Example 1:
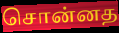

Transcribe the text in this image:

சொன்னத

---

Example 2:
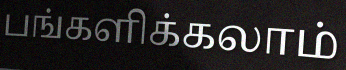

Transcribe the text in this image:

பங்களிக்கலாம்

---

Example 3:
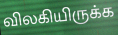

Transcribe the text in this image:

விலகியிருக்க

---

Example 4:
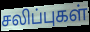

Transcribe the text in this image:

சலிப்புகள்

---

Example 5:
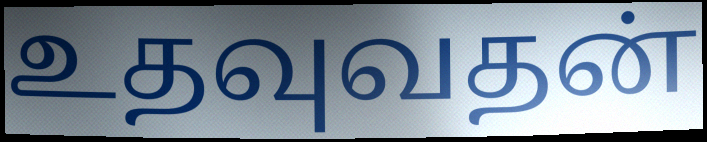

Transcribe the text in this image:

உதவுவதன்